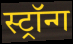
स्ट्रॉन्ग